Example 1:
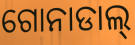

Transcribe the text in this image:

ଗୋନାଡାଲ୍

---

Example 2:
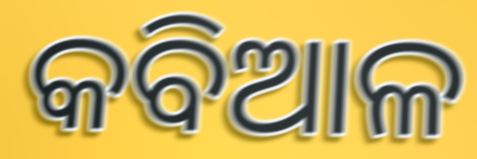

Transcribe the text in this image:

କବିଆଳ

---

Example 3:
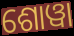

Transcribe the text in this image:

ଶୋୱା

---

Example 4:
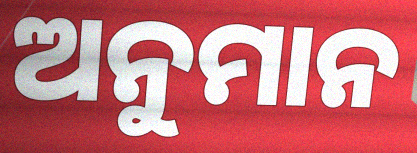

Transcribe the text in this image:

ଅନୁମାନ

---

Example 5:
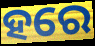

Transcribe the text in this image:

ହରେ